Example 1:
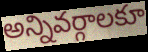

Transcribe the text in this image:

అన్నివర్గాలకూ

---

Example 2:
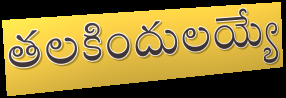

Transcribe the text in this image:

తలకిందులయ్యే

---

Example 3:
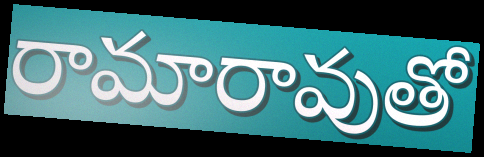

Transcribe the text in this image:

రామారావుతో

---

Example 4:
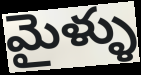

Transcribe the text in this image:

మైళ్ళు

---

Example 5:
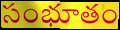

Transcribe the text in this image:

సంభూతం